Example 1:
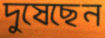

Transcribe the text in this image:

দুষেছেন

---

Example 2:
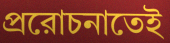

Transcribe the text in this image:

প্ররোচনাতেই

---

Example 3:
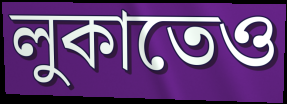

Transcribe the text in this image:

লুকাতেও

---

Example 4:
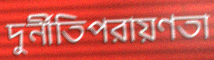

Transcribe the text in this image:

দুর্নীতিপরায়ণতা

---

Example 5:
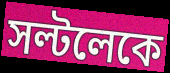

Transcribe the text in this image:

সল্টলেকে